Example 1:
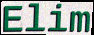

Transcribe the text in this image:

Elim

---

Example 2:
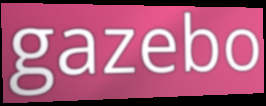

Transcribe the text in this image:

gazebo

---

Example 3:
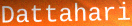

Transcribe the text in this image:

Dattahari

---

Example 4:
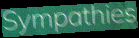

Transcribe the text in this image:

Sympathies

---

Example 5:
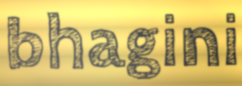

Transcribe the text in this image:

bhagini